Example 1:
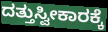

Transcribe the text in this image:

ದತ್ತುಸ್ವೀಕಾರಕ್ಕೆ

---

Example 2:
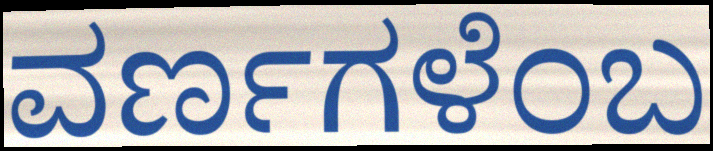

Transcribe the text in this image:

ವರ್ಣಗಳೆಂಬ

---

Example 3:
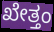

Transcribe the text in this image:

ಖೇತ್ತಂ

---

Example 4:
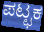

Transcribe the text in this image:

ಪಟ್ಟಕ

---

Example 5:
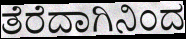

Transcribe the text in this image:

ತೆರೆದಾಗಿನಿಂದ